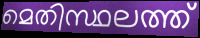
മെതിസ്ഥലത്ത്